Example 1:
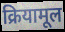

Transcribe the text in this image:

क्रियामूल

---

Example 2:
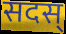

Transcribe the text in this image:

सदस्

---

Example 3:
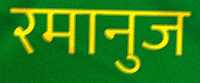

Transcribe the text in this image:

रमानुज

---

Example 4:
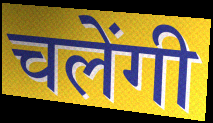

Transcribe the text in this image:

चलेंगी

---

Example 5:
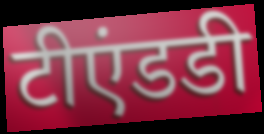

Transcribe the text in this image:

टीएंडडी